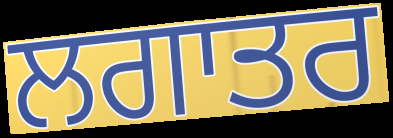
ਲਗਾਤਰ